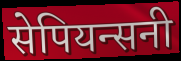
सेपियन्सनी